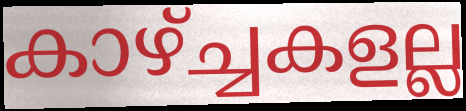
കാഴ്ച്ചകളല്ല